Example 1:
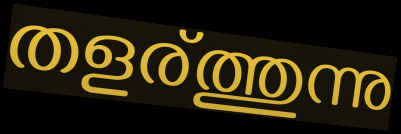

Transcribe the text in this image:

തളര്ത്തുന്നു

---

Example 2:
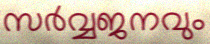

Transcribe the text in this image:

സർവ്വജനവും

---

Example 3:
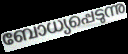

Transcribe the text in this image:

ബോധ്യപ്പെടുന്നു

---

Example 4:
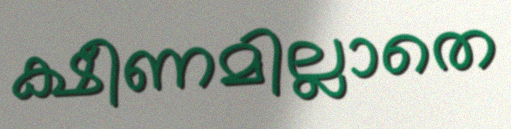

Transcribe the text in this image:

ക്ഷീണമില്ലാതെ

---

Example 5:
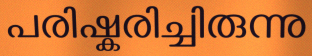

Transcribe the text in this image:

പരിഷ്കരിച്ചിരുന്നു